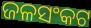
ଜଳସଂକଟ